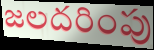
జలదరింపు